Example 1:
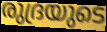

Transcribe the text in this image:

രുദ്രയുടെ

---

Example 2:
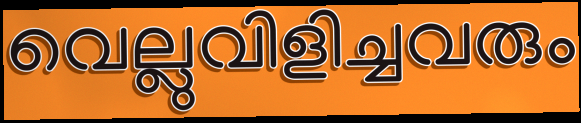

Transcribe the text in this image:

വെല്ലുവിളിച്ചവരും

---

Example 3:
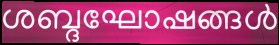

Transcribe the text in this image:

ശബ്ദഘോഷങ്ങൾ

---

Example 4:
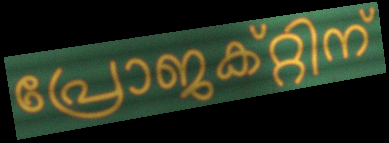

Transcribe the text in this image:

പ്രോജക്റ്റിന്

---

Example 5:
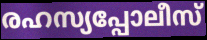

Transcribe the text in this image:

രഹസ്യപ്പോലീസ്